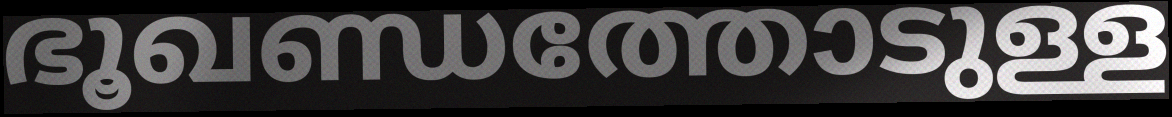
ഭൂഖണ്ഡത്തോടുള്ള